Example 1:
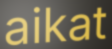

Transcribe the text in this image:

aikat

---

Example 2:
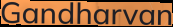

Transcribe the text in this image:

Gandharvan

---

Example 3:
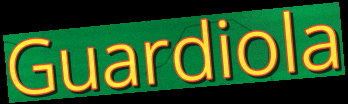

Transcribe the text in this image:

Guardiola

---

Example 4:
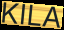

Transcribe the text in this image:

KILA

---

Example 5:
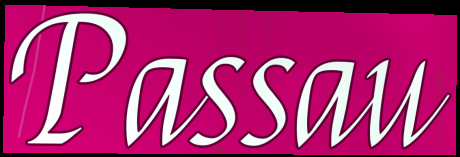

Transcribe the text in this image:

Passau